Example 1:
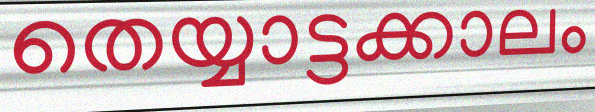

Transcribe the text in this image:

തെയ്യാട്ടക്കാലം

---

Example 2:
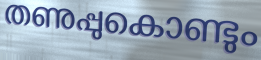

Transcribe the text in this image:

തണുപ്പുകൊണ്ടും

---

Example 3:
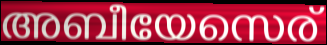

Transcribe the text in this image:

അബീയേസെര്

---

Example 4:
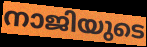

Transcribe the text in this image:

നാജിയുടെ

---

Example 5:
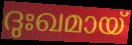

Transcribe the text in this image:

ദുഃഖമായ്